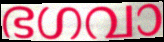
ഭഗവാ